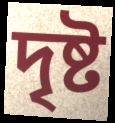
দৃষ্ট